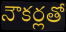
నౌకర్లతో